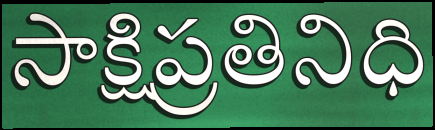
సాక్షిప్రతినిధి